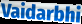
Vaidarbhi